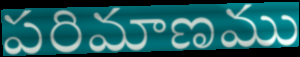
పరిమాణము